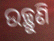
ଉଚ୍ଛୁଣି